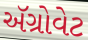
ઍગ્રોવેટ